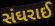
સંઘરાઈ